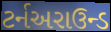
ટર્નઅરાઉન્ડ